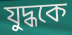
যুদ্ধকে